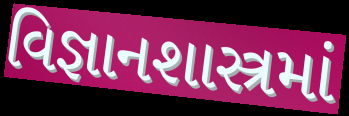
વિજ્ઞાનશાસ્ત્રમાં